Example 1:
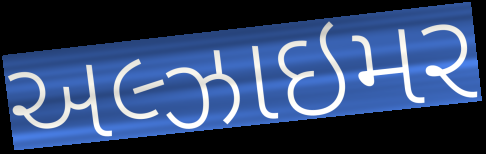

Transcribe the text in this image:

અલ્ઝાઇમર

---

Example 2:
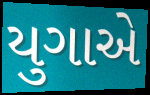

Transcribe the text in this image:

યુગાએ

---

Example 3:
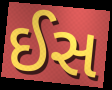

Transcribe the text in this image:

ઈસ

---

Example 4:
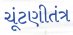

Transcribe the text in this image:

ચૂંટણીતંત્ર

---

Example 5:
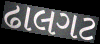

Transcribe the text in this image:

ઢાલગટ